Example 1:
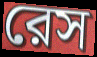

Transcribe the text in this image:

রেস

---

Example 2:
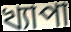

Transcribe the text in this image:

খ্যাপা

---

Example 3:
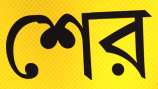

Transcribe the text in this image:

শের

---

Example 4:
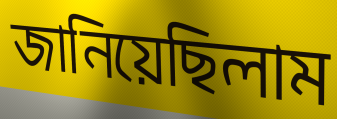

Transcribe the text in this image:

জানিয়েছিলাম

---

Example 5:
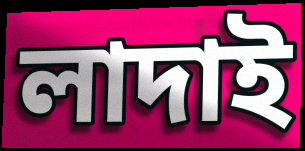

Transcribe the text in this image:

লাদাই